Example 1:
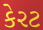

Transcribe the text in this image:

કેરટ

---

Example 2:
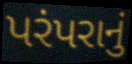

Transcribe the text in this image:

પરંપરાનું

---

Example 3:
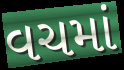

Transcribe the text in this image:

વચમાં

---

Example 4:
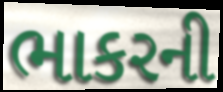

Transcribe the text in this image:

ભાકરની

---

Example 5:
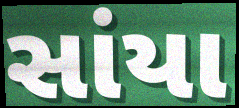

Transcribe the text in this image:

સાંયા